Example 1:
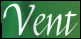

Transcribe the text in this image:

Vent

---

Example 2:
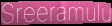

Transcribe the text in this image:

Sreeramulu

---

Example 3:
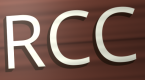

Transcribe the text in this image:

RCC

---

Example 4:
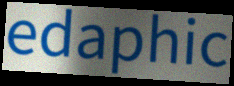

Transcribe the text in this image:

edaphic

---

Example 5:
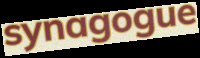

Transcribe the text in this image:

synagogue